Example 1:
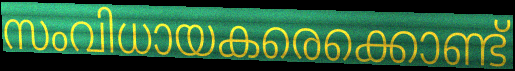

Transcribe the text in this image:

സംവിധായകരെക്കൊണ്ട്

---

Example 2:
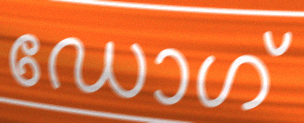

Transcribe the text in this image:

ഡോഗ്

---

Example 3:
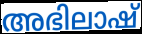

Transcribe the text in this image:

അഭിലാഷ്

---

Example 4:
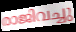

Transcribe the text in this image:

രാജിവച്ചു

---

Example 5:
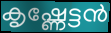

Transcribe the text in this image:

കൃഷ്ണേട്ടൻ